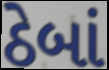
ઠેબાં